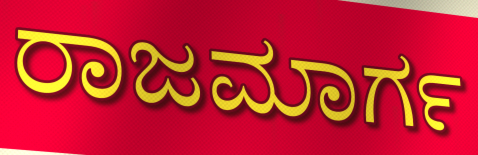
ರಾಜಮಾರ್ಗ